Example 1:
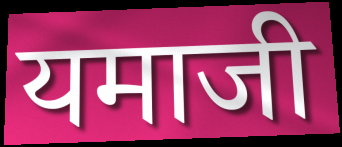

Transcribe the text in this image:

यमाजी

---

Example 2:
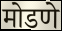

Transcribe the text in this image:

मोडणे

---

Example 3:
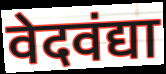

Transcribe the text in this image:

वेदवंद्या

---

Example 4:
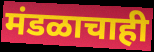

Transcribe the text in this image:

मंडळाचाही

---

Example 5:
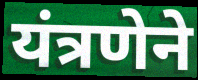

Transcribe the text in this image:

यंत्रणेने